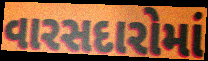
વારસદારોમાં